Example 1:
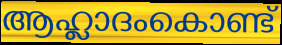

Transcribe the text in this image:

ആഹ്ലാദംകൊണ്ട്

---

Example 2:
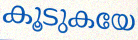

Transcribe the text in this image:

കൂടുകയേ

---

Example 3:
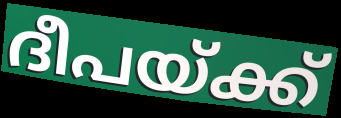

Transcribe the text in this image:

ദീപയ്ക്ക്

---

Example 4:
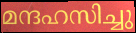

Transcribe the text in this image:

മന്ദഹസിച്ചു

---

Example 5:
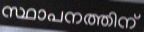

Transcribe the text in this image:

സ്ഥാപനത്തിന്